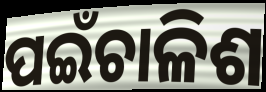
ପଇଁଚାଳିଶ